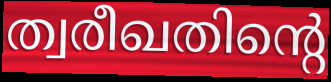
ത്വരീഖതിന്റെ